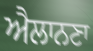
ਐਲਾਨਣਾ